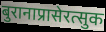
बुरानाप्रासेरत्सुक